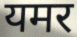
यमर